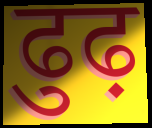
ढुढ़